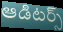
ఆడిటర్స్